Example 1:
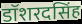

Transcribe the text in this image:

डॉशरदसिंह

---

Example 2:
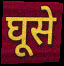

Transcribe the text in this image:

घूसे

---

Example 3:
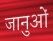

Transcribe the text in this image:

जानुओं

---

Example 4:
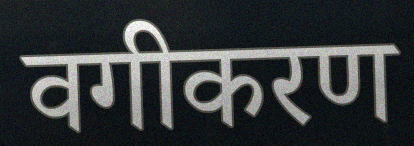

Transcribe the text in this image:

वगीकरण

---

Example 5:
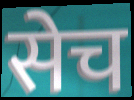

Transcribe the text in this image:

सेच